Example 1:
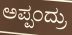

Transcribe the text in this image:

ಅಪ್ಪಂದ್ರು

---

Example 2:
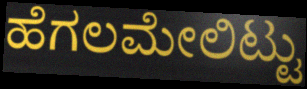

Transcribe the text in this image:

ಹೆಗಲಮೇಲಿಟ್ಟು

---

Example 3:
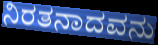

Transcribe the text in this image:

ನಿರತನಾದವನು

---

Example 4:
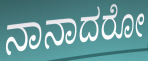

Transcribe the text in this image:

ನಾನಾದರೋ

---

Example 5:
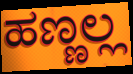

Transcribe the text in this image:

ಹಣ್ಣಲ್ಲ